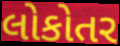
લોકોતર